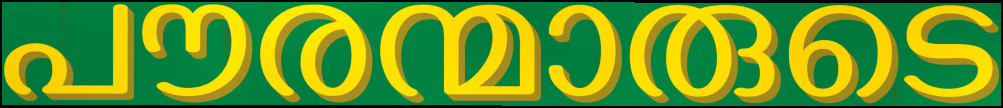
പൗരന്മാരുടെ